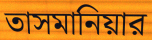
তাসমানিয়ার